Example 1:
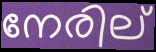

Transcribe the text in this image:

നേരില്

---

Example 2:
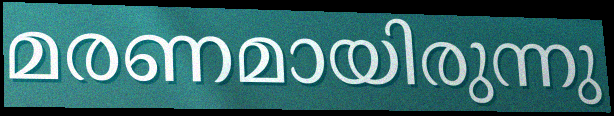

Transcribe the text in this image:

മരണമായിരുന്നു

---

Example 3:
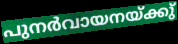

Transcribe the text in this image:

പുനർവായനയ്ക്കു്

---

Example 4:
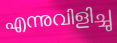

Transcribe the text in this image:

എന്നുവിളിച്ചു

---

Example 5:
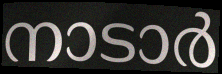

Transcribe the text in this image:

നാടാർ